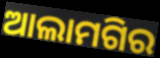
ଆଲାମଗିର